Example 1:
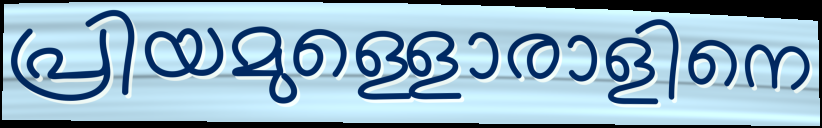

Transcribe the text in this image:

പ്രിയമുള്ളൊരാളിനെ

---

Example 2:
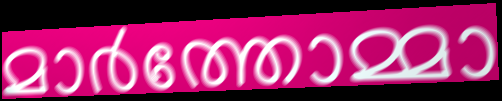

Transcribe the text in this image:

മാർത്തോമ്മാ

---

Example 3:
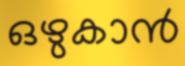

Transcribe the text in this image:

ഒഴുകാൻ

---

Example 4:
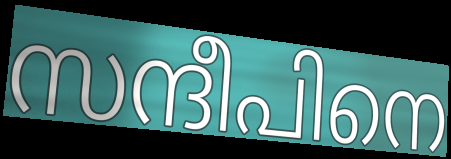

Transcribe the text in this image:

സന്ദീപിനെ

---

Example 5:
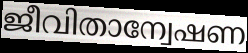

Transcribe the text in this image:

ജീവിതാന്വേഷണ